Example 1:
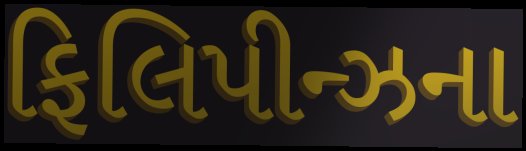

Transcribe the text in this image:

ફિલિપીન્ઝના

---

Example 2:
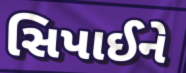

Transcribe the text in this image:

સિપાઈને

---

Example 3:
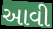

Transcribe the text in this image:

આવી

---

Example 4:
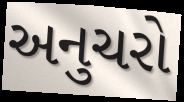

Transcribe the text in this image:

અનુચરો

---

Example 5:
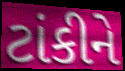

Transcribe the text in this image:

ટાંકીને